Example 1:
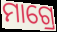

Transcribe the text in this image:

ମାଗ୍ରେ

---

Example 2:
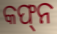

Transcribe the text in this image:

କଫ୍‌ନ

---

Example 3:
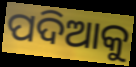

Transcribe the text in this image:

ପଦିଆକୁ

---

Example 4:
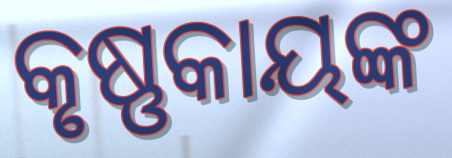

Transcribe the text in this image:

କୃଷ୍ଣକାୟଙ୍କ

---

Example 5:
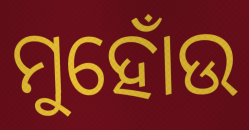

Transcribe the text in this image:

ମୁହୋଁଉ